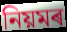
নিয়মৰ